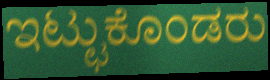
ಇಟ್ಟುಕೊಂಡರು